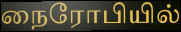
நைரோபியில்